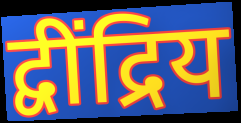
द्वींद्रिय